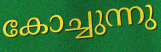
കോച്ചുന്നു